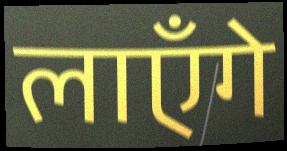
लाएँगे